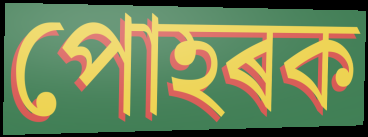
পোহৰক